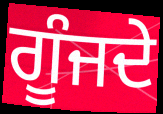
ਗੂੰਜਦੇ